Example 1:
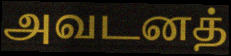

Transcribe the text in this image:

அவடனத்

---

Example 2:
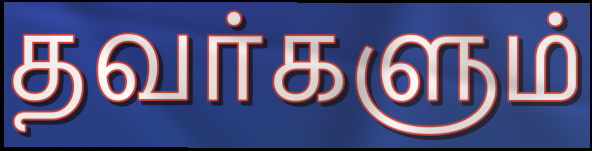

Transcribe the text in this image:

தவர்களும்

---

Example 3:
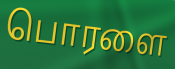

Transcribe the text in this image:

பொரளை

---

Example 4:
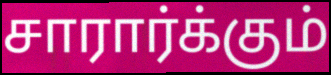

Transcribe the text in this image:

சாரார்க்கும்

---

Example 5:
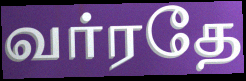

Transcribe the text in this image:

வர்ரதே